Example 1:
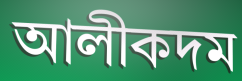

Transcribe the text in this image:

আলীকদম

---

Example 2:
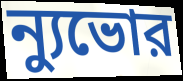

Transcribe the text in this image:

ন্যুভোর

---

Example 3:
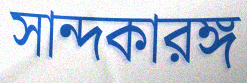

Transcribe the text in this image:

সান্দকারঙ্গ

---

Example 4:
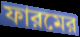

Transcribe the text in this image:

ফারমের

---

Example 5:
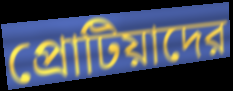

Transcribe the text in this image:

প্রোটিয়াদের